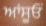
ਆਂਸੂਓਂ